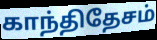
காந்திதேசம்